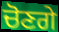
ਚੋਣਗੇ